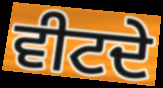
ਵੀਟਦੇ